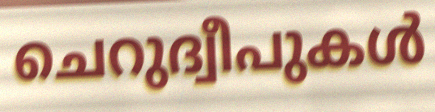
ചെറുദ്വീപുകൾ